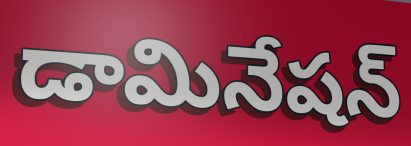
డామినేషన్